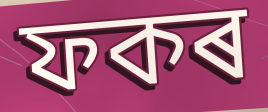
ফকৰ